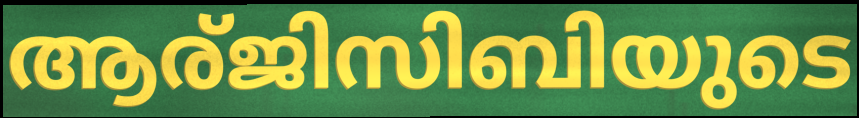
ആര്ജിസിബിയുടെ